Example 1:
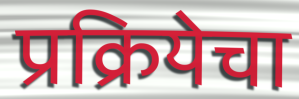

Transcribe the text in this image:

प्रक्रियेचा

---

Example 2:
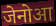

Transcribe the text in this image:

जेनोआ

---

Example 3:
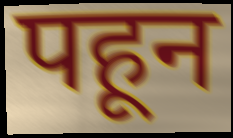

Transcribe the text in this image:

पहून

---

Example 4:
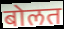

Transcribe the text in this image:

बोलत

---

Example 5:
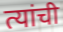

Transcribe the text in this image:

त्यांची